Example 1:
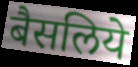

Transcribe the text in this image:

बैसलिये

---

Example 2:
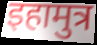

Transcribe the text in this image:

इहामुत्र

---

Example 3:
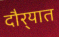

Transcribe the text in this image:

दौर्‍यात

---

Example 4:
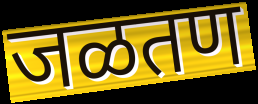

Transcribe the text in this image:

जळतण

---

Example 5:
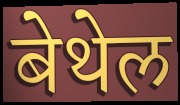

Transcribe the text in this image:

बेथेल